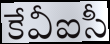
కేవీఐసీ